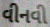
વીનવી